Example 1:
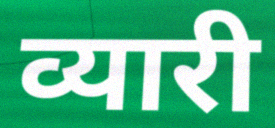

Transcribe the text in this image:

व्यारी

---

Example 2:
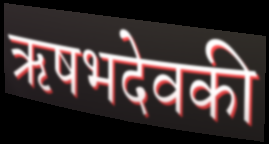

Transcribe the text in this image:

ऋषभदेवकी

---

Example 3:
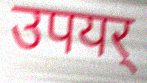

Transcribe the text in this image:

उपयर्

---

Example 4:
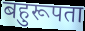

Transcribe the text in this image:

बहुरूपता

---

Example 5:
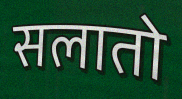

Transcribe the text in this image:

सलातो